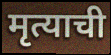
मृत्याची